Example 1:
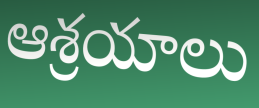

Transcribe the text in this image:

ఆశ్రయాలు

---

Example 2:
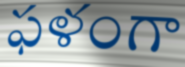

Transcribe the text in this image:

ఫళంగా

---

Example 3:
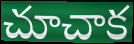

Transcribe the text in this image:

చూచాక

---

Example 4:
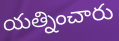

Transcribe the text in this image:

యత్నించారు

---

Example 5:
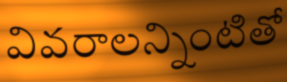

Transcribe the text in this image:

వివరాలన్నింటితో